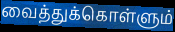
வைத்துக்கொள்ளும்